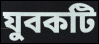
যুবকটি